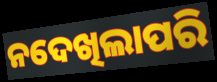
ନଦେଖିଲାପରି